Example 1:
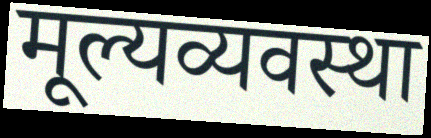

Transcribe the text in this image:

मूल्यव्यवस्था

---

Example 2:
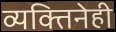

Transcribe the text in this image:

व्यक्तिनेही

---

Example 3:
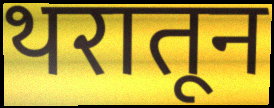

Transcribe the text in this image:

थरातून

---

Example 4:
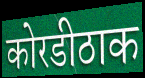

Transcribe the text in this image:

कोरडीठाक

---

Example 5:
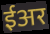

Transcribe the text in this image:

ईअर